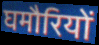
घमौरियों